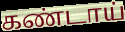
கண்டாய்